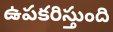
ఉపకరిస్తుంది